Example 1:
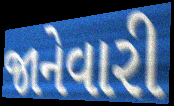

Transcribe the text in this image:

જાનેવારી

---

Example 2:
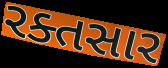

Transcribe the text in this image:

રક્તસાર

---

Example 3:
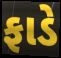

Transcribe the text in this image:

ફાડે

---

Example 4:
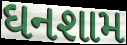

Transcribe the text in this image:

ઘનશામ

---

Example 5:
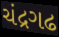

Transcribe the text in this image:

ચંદ્રગઢ